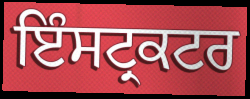
ਇੰਸਟ੍ਰਕਟਰ